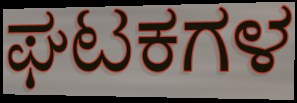
ಘಟಕಗಳ